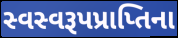
સ્વસ્વરૂપપ્રાપ્તિના